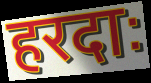
हरदाः